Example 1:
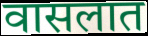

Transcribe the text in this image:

वासलात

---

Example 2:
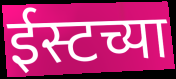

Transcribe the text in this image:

ईस्टच्या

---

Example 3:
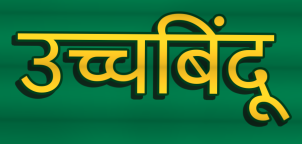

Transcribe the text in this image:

उच्चबिंदू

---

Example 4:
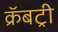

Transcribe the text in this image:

क्रॅबट्री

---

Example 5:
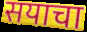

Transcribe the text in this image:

सयाचा